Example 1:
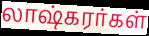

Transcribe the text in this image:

லாஷ்கரர்கள்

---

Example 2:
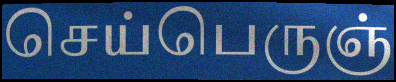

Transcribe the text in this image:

செய்பெருஞ்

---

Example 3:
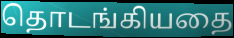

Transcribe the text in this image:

தொடங்கியதை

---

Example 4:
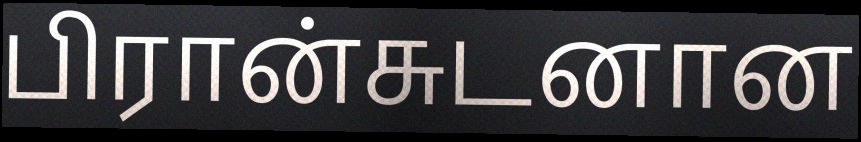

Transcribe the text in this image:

பிரான்சுடனான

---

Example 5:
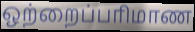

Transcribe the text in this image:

ஒற்றைப்பரிமாண